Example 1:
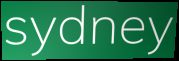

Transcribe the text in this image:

sydney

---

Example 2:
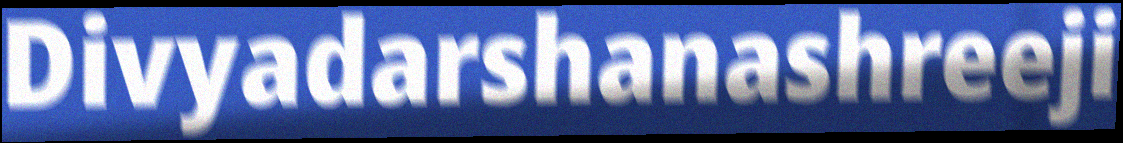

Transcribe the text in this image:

Divyadarshanashreeji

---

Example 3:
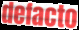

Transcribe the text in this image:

defacto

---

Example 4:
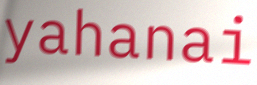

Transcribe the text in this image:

yahanai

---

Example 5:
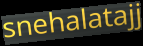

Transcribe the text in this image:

snehalatajj